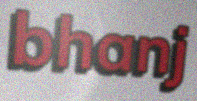
bhanj